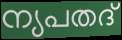
ന്യപതദ്